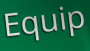
Equip